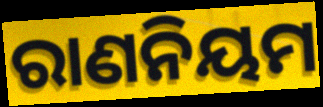
ରାଣନିୟମ